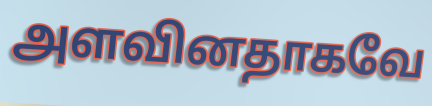
அளவினதாகவே